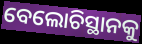
ବେଲୋଚିସ୍ଥାନକୁ